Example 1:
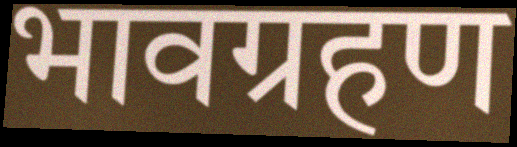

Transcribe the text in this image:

भावग्रहण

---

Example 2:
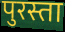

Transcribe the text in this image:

पुरस्ता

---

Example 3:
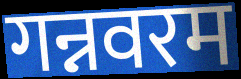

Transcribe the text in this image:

गन्नवरम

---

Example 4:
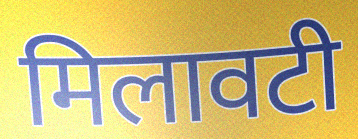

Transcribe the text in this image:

मिलावटी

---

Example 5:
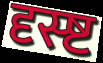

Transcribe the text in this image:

दृस्ष्ट